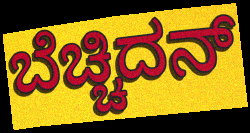
ಬೆಚ್ಚಿದನ್